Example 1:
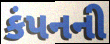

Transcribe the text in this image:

કંપનની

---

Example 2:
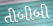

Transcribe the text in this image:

તીબીબી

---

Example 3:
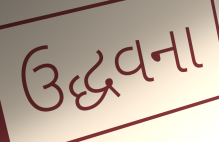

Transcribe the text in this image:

ઉદ્ધવના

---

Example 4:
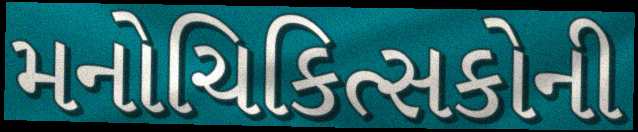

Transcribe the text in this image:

મનોચિકિત્સકોની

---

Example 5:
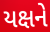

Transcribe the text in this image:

યક્ષને